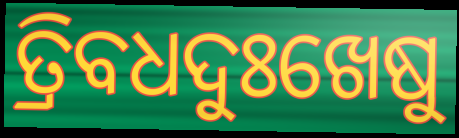
ତ୍ରିବଧଦୁଃଖେଷୁ